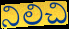
నిలిచి